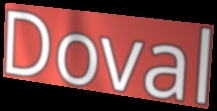
Doval